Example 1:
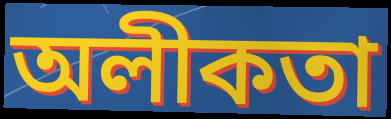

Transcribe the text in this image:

অলীকতা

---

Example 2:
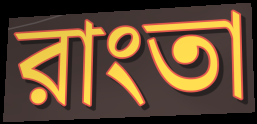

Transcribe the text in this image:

রাংতা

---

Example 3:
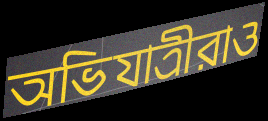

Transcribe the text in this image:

অভিযাত্রীরাও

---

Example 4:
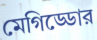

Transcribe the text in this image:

মেগিড্ডোর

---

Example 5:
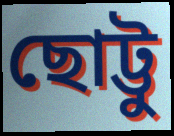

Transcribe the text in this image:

ছোট্টু